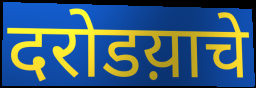
दरोडय़ाचे